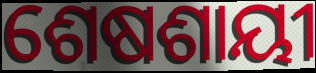
ଶେଷଶାୟୀ